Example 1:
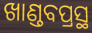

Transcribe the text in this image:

ଖାଣ୍ଡବପ୍ରସ୍ଥ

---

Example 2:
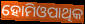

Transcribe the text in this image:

ହୋମିଓପାଥିକ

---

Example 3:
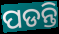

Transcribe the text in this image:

ପଡନ୍ତି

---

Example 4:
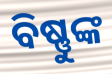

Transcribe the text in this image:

ବିଷ୍ଣୁଙ୍କ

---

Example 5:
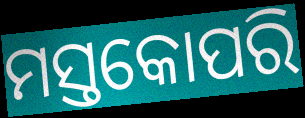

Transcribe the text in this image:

ମସ୍ତକୋପରି